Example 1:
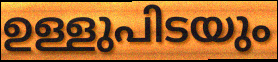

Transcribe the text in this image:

ഉള്ളുപിടയും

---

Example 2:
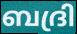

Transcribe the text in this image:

ബദ്രി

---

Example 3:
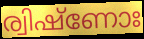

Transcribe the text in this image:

ര്വിഷ്ണോഃ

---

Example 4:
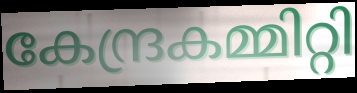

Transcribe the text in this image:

കേന്ദ്രകമ്മിറ്റി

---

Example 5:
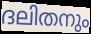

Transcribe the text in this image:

ദലിതനും